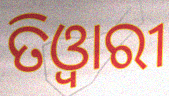
ତିଓ୍ଵାରୀ